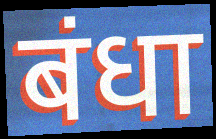
बंधा